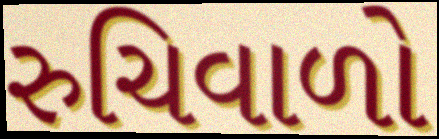
રુચિવાળો